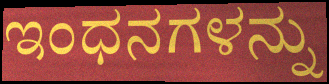
ಇಂಧನಗಳನ್ನು